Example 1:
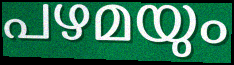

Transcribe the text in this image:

പഴമയും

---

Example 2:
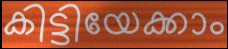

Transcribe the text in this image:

കിട്ടിയേക്കാം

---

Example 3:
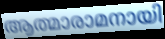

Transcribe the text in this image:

ആത്മാരാമനായി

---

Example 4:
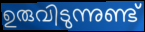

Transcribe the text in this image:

ഉരുവിടുന്നുണ്ട്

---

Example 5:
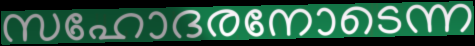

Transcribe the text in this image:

സഹോദരനോടെന്ന